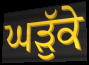
ਘੜੁੱਕੇ